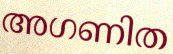
അഗണിത